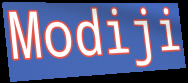
Modiji